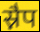
स्नैप